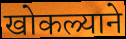
खोकल्याने